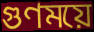
গুণময়ে